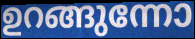
ഉറങ്ങുന്നോ